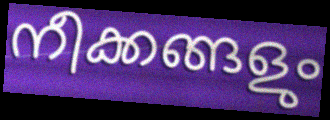
നീക്കങ്ങളും